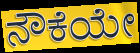
ನೌಕೆಯೇ